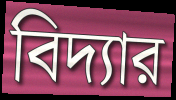
বিদ্যার